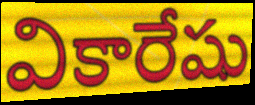
వికారేషు